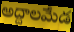
అద్దాలమేడ